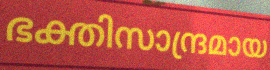
ഭക്തിസാന്ദ്രമായ